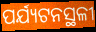
ପର୍ଯ୍ୟଟନସ୍ଥଳୀ